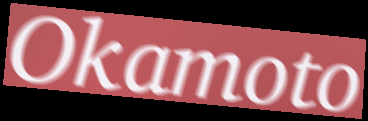
Okamoto